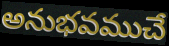
అనుభవముచే